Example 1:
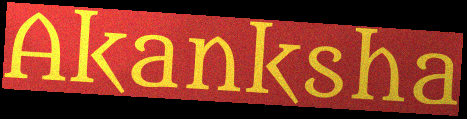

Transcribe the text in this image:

Akanksha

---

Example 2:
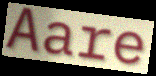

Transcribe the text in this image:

Aare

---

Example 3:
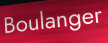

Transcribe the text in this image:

Boulanger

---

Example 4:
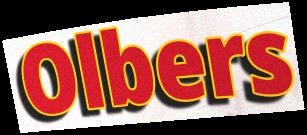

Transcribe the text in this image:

Olbers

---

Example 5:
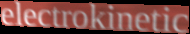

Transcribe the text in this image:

electrokinetic